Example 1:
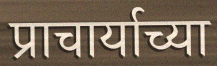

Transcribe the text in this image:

प्राचार्याच्या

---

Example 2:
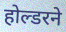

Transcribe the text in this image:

होल्डरने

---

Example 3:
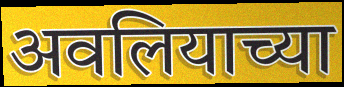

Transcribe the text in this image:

अवलियाच्या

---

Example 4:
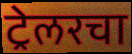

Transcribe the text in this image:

ट्रेलरचा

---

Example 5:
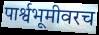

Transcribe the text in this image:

पार्श्वभूमीवरच